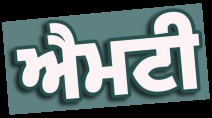
ਐਮਟੀ